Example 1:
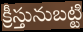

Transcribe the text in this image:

క్రీస్తునుబట్టి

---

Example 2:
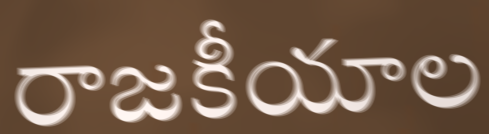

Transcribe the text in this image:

రాజకీయాల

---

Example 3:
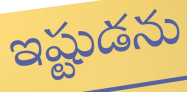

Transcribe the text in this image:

ఇష్టుడను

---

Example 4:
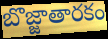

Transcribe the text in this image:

బొజ్జాతారకం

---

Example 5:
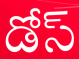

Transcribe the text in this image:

డోస్